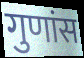
गुणांस